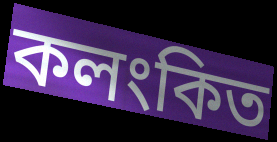
কলংকিত